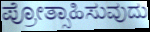
ಪ್ರೋತ್ಸಾಹಿಸುವುದು